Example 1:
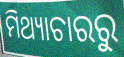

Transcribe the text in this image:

ମିଥ୍ୟାଚାରରୁ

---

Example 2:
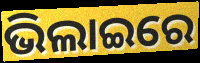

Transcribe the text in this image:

ଭିଲାଇରେ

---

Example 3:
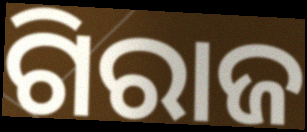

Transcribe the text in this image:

ଗିରାଜ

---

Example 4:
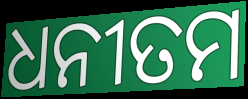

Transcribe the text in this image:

ଧନୀତମ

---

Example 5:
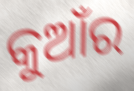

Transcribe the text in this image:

କୁଆଁର